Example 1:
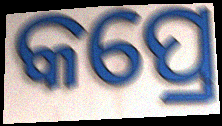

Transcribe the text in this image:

କପ୍ରେ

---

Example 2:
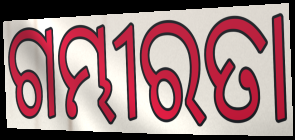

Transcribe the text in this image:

ଗମ୍ଭୀରତା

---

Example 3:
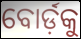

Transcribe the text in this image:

ବୋର୍ଡ଼କୁ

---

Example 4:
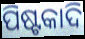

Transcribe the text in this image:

ପିଷ୍ଟକାଦି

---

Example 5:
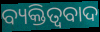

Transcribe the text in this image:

ବ୍ୟକ୍ତିତ୍ବବାଦ